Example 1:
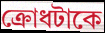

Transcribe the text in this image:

ক্রোধটাকে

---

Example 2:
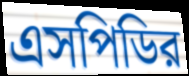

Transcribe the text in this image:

এসপিডির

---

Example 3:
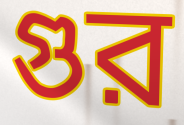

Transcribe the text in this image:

গুর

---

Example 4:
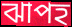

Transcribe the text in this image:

ঝাপহ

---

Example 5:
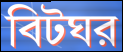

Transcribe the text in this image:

বিটঘর